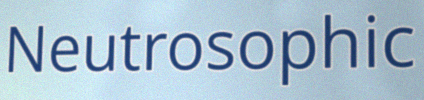
Neutrosophic